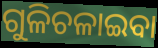
ଗୁଳିଚଳାଇବା